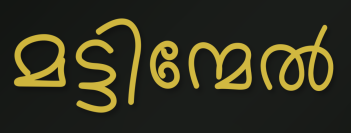
മട്ടിന്മേൽ